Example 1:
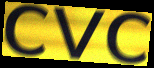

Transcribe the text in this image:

cvc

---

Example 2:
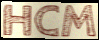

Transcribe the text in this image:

HCM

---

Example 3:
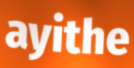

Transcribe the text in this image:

ayithe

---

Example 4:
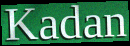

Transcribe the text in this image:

Kadan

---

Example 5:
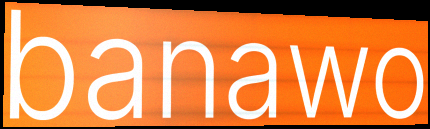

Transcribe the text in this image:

banawo